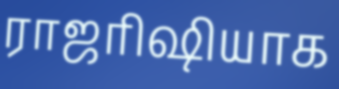
ராஜரிஷியாக